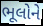
ભૂલોને